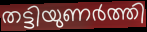
തട്ടിയുണർത്തി